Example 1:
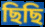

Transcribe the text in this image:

ছিছি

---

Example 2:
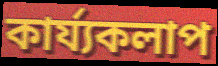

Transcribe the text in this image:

কাৰ্য্যকলাপ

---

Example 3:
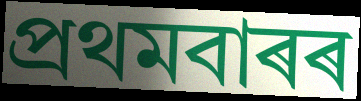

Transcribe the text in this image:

প্ৰথমবাৰৰ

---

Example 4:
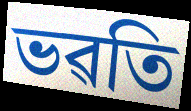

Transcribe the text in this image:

ভৱতি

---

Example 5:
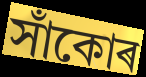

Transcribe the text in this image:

সাঁকোৰ